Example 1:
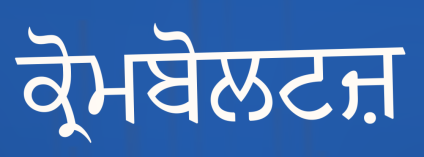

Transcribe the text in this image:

ਕ੍ਰੋਮਬੋਲਟਜ਼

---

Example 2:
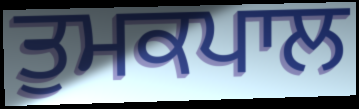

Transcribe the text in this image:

ਤੁਮਕਪਾਲ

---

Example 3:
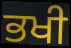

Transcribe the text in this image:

ਭਖੀ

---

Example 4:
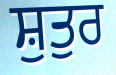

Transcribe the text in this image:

ਸ਼ੁਤੁਰ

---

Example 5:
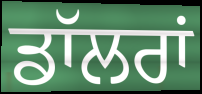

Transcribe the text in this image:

ਡਾੱਲਰਾਂ